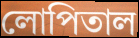
লোপিতাল